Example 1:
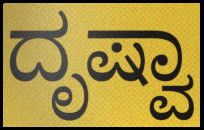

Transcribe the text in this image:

ದೃಷ್ವಾ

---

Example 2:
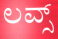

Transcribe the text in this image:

ಲವ್ಸ್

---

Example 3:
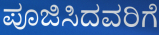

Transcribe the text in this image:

ಪೂಜಿಸಿದವರಿಗೆ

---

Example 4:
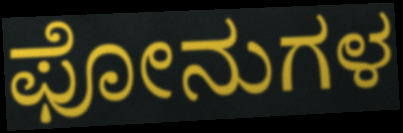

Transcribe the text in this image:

ಫೋನುಗಳ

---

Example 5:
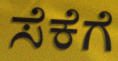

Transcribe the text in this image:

ಸೆಕೆಗೆ